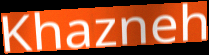
Khazneh